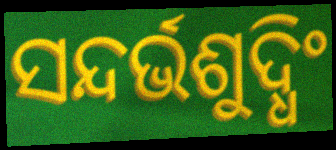
ସନ୍ଦର୍ଭଶୁଦ୍ଧିଂ